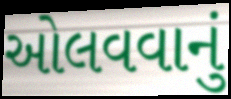
ઓલવવાનું